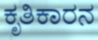
ಕೃತಿಕಾರನ